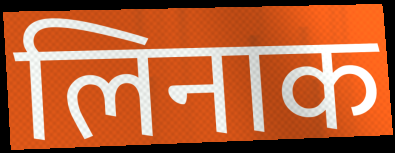
लिनाक